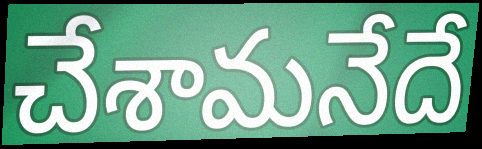
చేశామనేదే